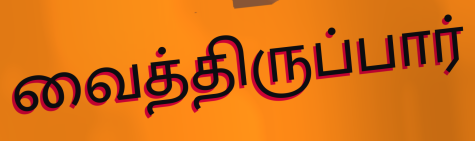
வைத்திருப்பார்